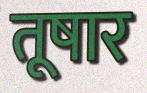
तूषार